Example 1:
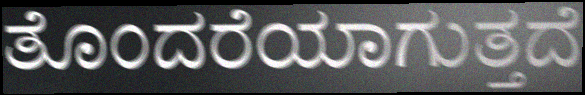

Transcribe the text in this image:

ತೊಂದರೆಯಾಗುತ್ತದೆ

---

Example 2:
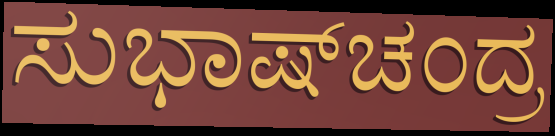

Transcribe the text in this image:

ಸುಭಾಷ್‌ಚಂದ್ರ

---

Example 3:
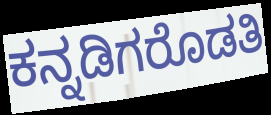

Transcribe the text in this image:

ಕನ್ನಡಿಗರೊಡತಿ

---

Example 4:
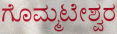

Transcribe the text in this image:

ಗೊಮ್ಮಟೇಶ್ವರ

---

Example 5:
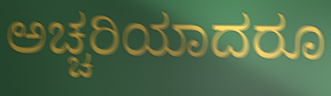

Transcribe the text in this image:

ಅಚ್ಚರಿಯಾದರೂ